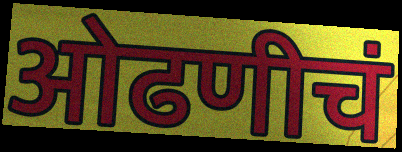
ओढणीचं